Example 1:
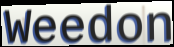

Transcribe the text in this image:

Weedon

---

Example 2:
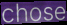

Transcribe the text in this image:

chose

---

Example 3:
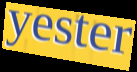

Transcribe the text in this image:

yester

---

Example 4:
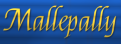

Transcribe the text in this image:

Mallepally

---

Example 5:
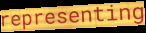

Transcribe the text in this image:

representing